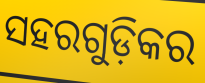
ସହରଗୁଡ଼ିକର